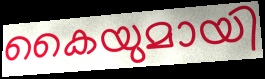
കൈയുമായി